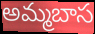
అమ్మబాస